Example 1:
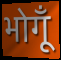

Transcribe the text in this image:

भोगूँ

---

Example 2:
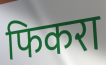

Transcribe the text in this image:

फिकरा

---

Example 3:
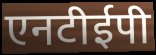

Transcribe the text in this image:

एनटीईपी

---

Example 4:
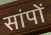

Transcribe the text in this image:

सांपों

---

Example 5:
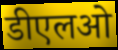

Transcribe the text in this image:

डीएलओ